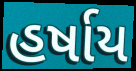
હર્ષાય